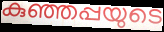
കുഞ്ഞപ്പയുടെ